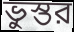
ভুস্তর